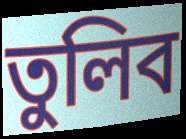
তুলিব